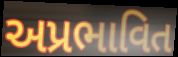
અપ્રભાવિત